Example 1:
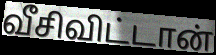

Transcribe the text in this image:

வீசிவிட்டான்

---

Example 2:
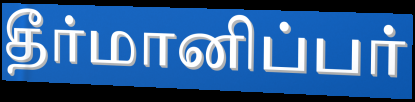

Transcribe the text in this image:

தீர்மானிப்பர்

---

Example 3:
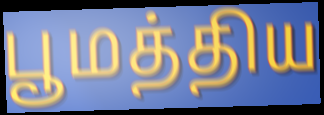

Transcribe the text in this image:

பூமத்திய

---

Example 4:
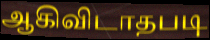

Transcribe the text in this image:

ஆகிவிடாதபடி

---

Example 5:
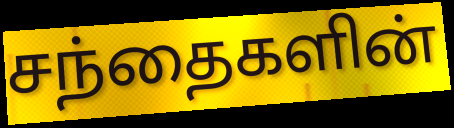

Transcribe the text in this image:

சந்தைகளின்